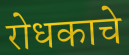
रोधकाचे